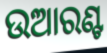
ଉଆରଣ୍ଟ